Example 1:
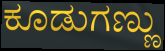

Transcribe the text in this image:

ಕೂಡುಗಣ್ಣು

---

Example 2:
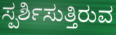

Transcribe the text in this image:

ಸ್ಪರ್ಶಿಸುತ್ತಿರುವ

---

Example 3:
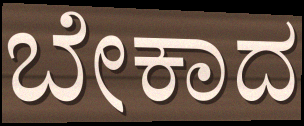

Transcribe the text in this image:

ಬೇಕಾದ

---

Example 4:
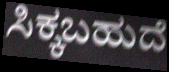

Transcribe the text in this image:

ಸಿಕ್ಕಬಹುದೆ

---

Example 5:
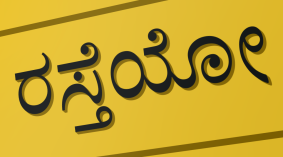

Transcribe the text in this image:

ರಸ್ತೆಯೋ